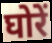
घोरें